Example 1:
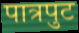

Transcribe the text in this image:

पात्रपुट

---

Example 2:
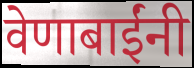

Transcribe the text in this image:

वेणाबाईंनी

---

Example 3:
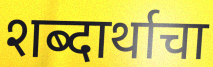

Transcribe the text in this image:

शब्दार्थाचा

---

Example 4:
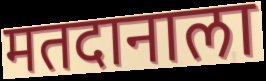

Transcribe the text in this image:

मतदानाला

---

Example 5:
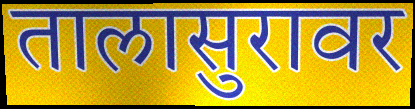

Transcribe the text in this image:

तालासुरावर